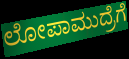
ಲೋಪಾಮುದ್ರೆಗೆ